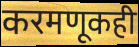
करमणूकही